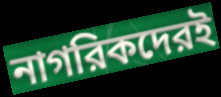
নাগরিকদেরই